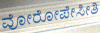
ವೋರೋಪೇಸೀತಿ